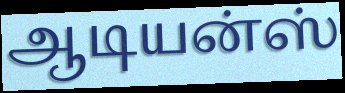
ஆடியன்ஸ்